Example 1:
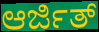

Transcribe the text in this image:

ಆರ್ಜಿತ್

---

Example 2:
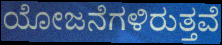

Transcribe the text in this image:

ಯೋಜನೆಗಳಿರುತ್ತವೆ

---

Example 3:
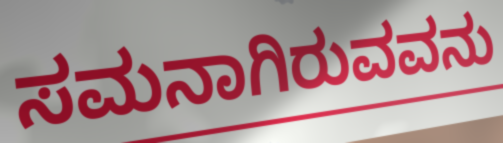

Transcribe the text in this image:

ಸಮನಾಗಿರುವವನು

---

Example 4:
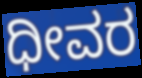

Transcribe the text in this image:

ಧೀವರ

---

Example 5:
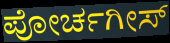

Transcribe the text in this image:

ಪೋರ್ಚಗೀಸ್